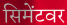
सिमेंटवर